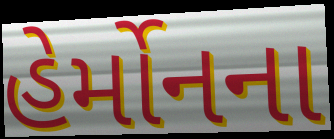
હેર્મોનના